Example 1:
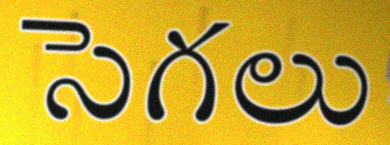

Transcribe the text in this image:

సెగలు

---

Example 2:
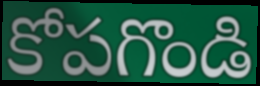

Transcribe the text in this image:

కోపగొండి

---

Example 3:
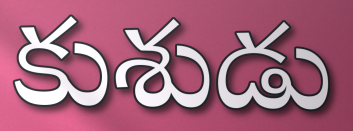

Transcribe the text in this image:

కుశుడు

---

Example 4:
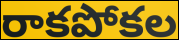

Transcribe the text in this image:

రాకపోకల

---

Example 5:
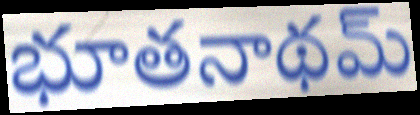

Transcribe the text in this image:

భూతనాథమ్